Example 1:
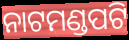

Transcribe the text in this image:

ନାଟମଣ୍ଡପଟି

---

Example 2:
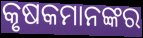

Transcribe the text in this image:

କୃଷକମାନଙ୍କର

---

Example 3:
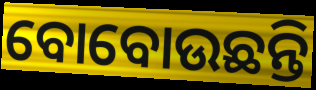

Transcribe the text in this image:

ବୋବୋଉଛନ୍ତି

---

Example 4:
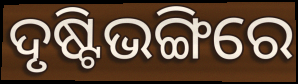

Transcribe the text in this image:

ଦୃଷ୍ଟିଭଙ୍ଗିରେ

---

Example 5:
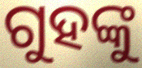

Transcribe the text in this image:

ଗୁହଙ୍କୁ